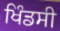
ਖਿੰਡਸੀ